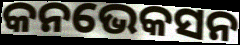
କନଭେକସନ